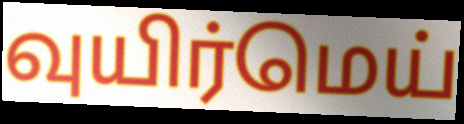
வுயிர்மெய்